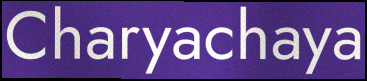
Charyachaya